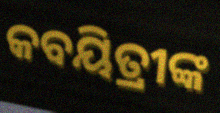
କବୟିତ୍ରୀଙ୍କ